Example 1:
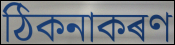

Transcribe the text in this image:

ঠিকনাকৰণ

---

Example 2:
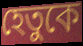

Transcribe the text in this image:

হেতুকে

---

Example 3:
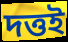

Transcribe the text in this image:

দত্তই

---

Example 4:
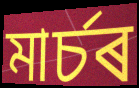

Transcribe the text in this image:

মাৰ্চৰ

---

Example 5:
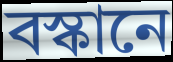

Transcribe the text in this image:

বস্কানে